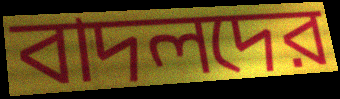
বাদলদের